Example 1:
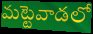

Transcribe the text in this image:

మట్టెవాడలో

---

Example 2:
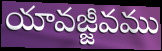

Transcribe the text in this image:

యావజ్జీవము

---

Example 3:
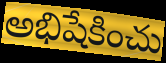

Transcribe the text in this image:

అభిషేకించు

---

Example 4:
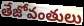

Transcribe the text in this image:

తేజోవంతులు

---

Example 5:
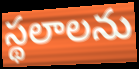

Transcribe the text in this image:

స్థలాలను